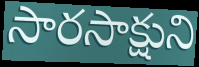
సారసాక్షుని